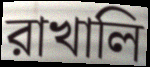
রাখালি